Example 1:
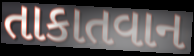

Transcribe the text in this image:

તાકાતવાન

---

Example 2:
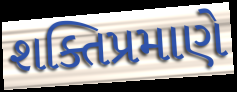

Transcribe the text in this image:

શક્તિપ્રમાણે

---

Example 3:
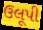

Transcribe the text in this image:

ઉલૂપી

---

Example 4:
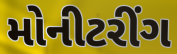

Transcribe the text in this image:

મોનીટરીંગ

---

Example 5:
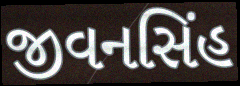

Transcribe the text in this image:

જીવનસિંહ